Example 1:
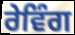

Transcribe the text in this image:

ਰੇਵਿੰਗ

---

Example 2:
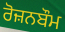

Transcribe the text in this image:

ਰੋਜ਼ਨਬੌਮ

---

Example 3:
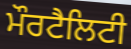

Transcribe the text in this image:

ਮੌਰਟੈਲਿਟੀ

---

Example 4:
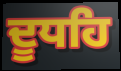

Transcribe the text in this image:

ਦੂਧਹਿ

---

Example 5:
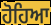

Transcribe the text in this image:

ਹੋਹਿਆ